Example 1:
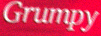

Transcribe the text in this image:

Grumpy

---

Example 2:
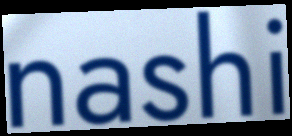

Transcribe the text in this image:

nashi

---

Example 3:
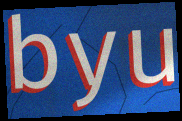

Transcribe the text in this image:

byu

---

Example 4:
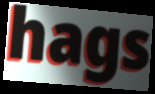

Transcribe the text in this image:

hags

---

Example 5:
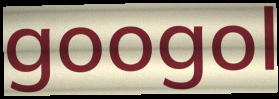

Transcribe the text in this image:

googol